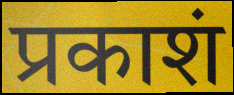
प्रकाशं